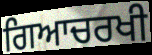
ਗਿਆਚਰਖੀ